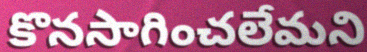
కొనసాగించలేమని